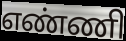
எண்ணி